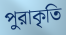
পুরাকৃতি